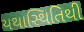
યથાસ્થિતિથી